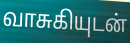
வாசுகியுடன்